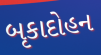
બૃકાદોહન